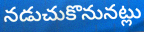
నడుచుకొనునట్లు